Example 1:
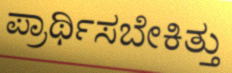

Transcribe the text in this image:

ಪ್ರಾರ್ಥಿಸಬೇಕಿತ್ತು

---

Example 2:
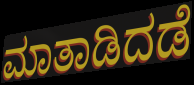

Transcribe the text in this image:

ಮಾತಾಡಿದಡೆ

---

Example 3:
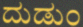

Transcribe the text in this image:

ದುಡುಂ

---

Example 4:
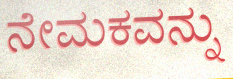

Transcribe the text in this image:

ನೇಮಕವನ್ನು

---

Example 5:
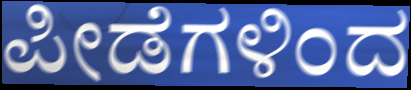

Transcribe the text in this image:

ಪೀಡೆಗಳಿಂದ